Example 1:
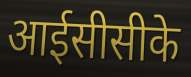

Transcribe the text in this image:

आईसीसीके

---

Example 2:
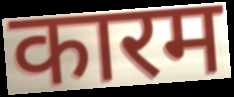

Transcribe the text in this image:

कारम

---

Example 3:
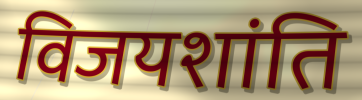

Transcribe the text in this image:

विजयशांति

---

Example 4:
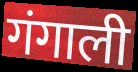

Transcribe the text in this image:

गंगाली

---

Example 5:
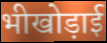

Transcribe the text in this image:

भीखोड़ाई